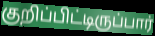
குறிப்பிட்டிருப்பார்